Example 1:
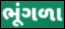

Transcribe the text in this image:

ભૂંગળા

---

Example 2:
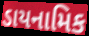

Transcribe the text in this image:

ડાયનામિક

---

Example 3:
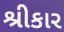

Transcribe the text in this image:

શ્રીકાર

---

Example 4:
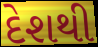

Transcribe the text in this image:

દેશથી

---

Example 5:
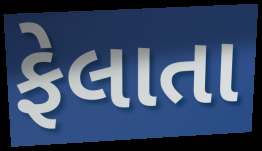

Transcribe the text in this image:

ફેલાતા